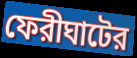
ফেরীঘাটের